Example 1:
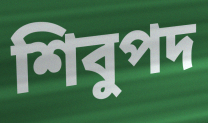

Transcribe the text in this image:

শিবুপদ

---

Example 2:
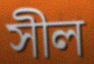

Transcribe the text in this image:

সীল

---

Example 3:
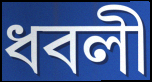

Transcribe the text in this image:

ধবলী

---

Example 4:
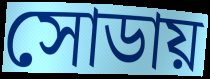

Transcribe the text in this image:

সোডায়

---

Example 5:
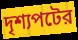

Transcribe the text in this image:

দৃশ্যপটের